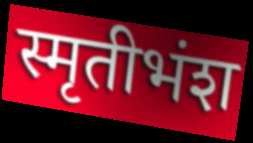
स्मृतीभंश